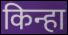
किन्हा